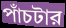
পাঁচটার